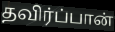
தவிர்ப்பான்